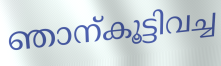
ഞാന്കൂട്ടിവച്ച